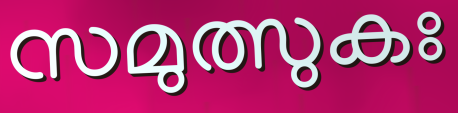
സമുത്സുകഃ